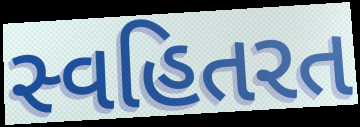
સ્વહિતરત